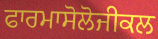
ਫਾਰਮਾਸੋਲੋਜੀਕਲ